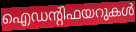
ഐഡന്റിഫയറുകൾ